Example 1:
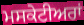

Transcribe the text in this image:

ਮਸਕੇਟੀਅਰਾਂ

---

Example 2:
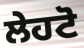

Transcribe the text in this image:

ਲੇਹਟੋ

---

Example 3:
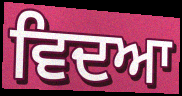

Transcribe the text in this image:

ਵਿਦਆ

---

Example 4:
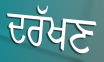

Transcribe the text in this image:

ਦਰੱਖਣ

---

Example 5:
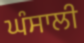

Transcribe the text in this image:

ਘੰਸਾਲੀ